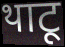
थाटू